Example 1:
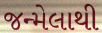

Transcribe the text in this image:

જન્મેલાથી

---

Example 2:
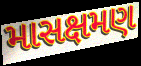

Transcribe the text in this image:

માસક્ષમણ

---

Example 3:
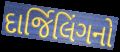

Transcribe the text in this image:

દાર્જિલિંગનો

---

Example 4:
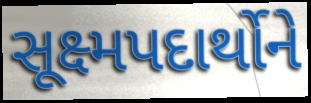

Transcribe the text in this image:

સૂક્ષ્મપદાર્થોને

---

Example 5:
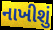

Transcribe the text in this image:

નાખીશું